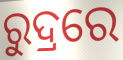
ରୁଦ୍ରରେ